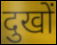
दुखों